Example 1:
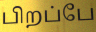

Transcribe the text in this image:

பிறப்பே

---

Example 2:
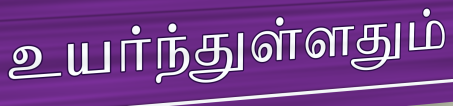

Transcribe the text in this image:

உயர்ந்துள்ளதும்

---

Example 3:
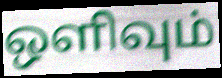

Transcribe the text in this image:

ஒளிவும்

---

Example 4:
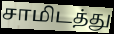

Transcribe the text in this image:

சாமிடத்து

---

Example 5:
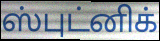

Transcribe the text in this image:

ஸ்புட்னிக்